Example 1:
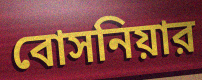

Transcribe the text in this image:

বোসনিয়ার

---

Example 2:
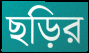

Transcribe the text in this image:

ছড়ির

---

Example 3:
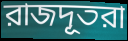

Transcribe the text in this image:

রাজদূতরা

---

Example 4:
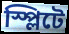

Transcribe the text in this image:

স্প্লিটে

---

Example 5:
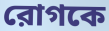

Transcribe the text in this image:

রোগকে